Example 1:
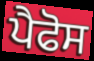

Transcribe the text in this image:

ਪੈਫੋਸ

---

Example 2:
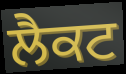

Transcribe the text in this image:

ਲੈਕਟ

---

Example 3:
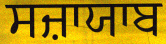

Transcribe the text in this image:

ਸਜ਼ਾਯਾਬ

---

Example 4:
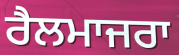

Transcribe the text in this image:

ਰੈਲਮਾਜਰਾ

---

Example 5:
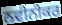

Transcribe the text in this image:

ਨਵੀਨੀਕਰ